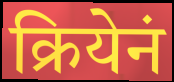
क्रियेनं